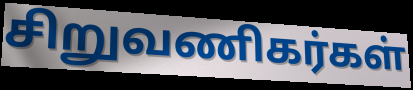
சிறுவணிகர்கள்